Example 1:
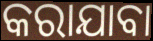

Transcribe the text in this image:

କରାଯାବା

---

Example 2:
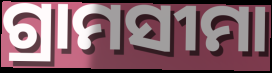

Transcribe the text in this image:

ଗ୍ରାମସୀମା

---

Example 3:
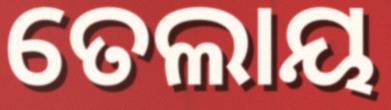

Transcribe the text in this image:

ତେଲାୟ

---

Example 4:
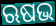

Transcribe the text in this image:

ଋଷଭ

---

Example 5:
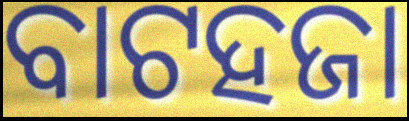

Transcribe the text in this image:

ବାଟହଜା